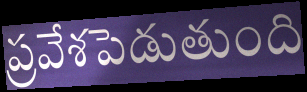
ప్రవేశపెడుతుంది